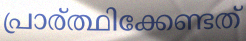
പ്രാര്ത്ഥിക്കേണ്ടത്